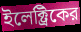
ইলেক্ট্রিকের